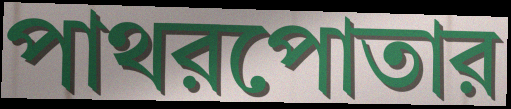
পাথরপোতার